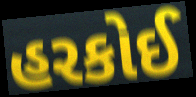
હરકોઈ